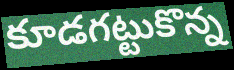
కూడగట్టుకొన్న